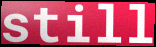
still